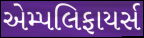
એમ્પલિફાયર્સ